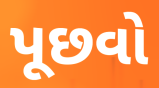
પૂછવો